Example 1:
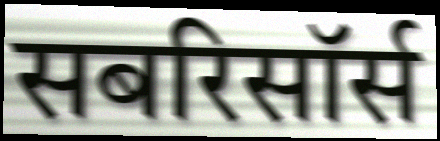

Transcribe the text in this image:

सबरिसॉर्स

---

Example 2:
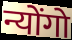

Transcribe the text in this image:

न्योंगो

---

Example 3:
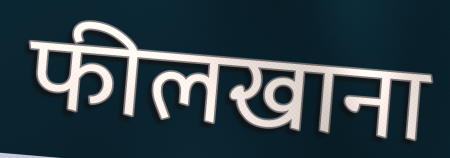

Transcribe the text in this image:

फीलखाना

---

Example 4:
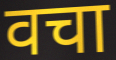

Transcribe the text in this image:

वचा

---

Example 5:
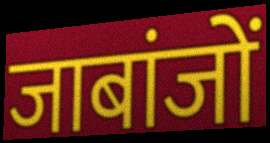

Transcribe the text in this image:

जाबांजों